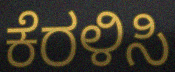
ಕೆರಳಿಸಿ